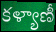
కళ్యాణీ